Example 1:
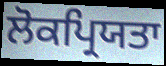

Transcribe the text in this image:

ਲੋਕਪ੍ਰਿਯਤਾ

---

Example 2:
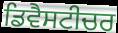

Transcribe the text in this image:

ਡਿਵੈਸਟੀਚਰ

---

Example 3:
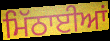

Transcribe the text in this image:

ਮਿੱਠਾਈਆਂ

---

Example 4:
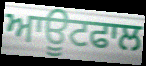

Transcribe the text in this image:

ਆਊਟਫਾਲ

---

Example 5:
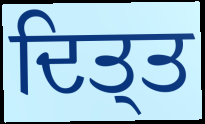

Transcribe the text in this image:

ਦਿਤ੍ਤ